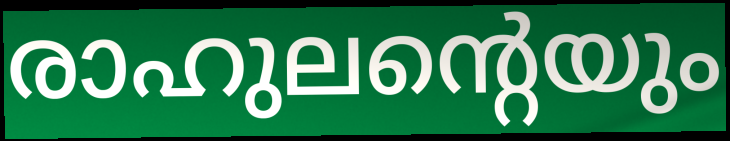
രാഹുലന്റെയും